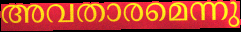
അവതാരമെന്നു